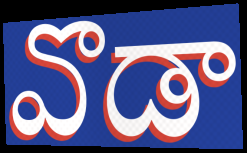
వొడా